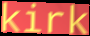
kirk